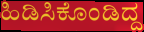
ಹಿಡಿಸಿಕೊಂಡಿದ್ದ